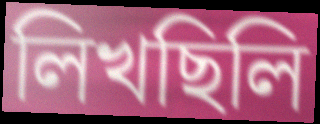
লিখছিলি